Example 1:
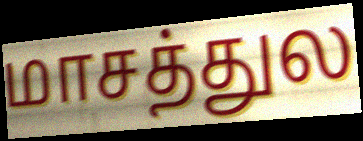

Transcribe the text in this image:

மாசத்துல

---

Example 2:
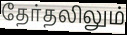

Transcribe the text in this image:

தேர்தலிலும்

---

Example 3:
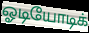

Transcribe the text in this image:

ஓடியோடிக்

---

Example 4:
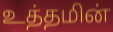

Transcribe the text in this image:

உத்தமின்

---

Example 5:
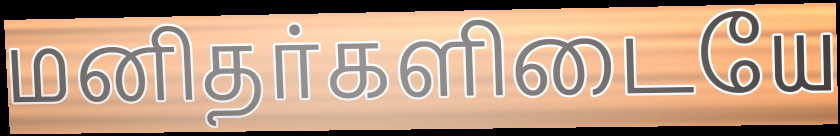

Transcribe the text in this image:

மனிதர்களிடையே